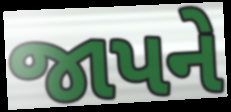
જાપને